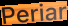
Periar